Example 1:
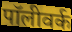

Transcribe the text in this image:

पॉलीवर्क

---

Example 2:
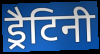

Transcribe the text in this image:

ड्रैटिनी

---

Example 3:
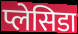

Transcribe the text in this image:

प्लेसिडा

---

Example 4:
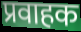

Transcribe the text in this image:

प्रवाहक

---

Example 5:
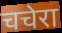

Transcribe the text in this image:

चचेरा